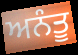
ਅਨੰਤੂ